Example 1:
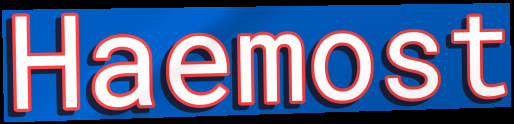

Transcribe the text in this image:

Haemost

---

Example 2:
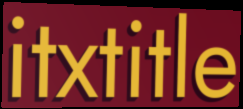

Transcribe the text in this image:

itxtitle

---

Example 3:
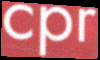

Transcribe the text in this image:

cpr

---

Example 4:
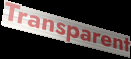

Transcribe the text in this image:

Transparent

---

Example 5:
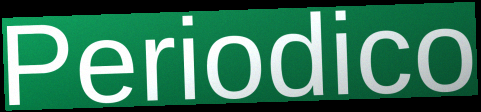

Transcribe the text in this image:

Periodico